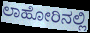
ಲಾಹೋರಿನಲ್ಲಿ